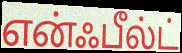
என்ஃபீல்ட்